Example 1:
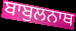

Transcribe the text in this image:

ਬਾਬੁਲਨਾਥ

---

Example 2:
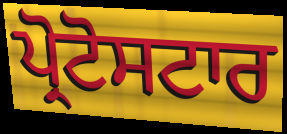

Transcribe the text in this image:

ਪ੍ਰੋਟੋਸਟਾਰ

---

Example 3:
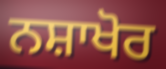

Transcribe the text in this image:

ਨਸ਼ਾਖੋਰ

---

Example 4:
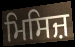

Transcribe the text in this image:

ਮਿਸਿਜ਼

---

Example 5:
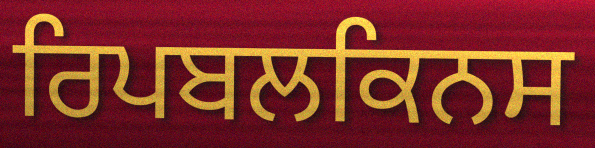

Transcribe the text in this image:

ਰਿਪਬਲਕਿਨਸ